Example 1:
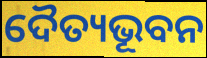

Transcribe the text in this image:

ଦୈତ୍ୟଭୂବନ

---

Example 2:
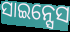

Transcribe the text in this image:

ସାଇନ୍ସେସ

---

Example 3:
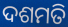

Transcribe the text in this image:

ଦଶମତି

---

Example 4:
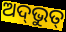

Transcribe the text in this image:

ଅଦ୍‌ଭୁତ୍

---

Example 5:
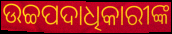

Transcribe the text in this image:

ଉଚ୍ଚପଦାଧିକାରୀଙ୍କ